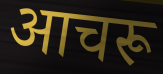
आचरू